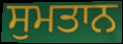
ਸੁਮਤਾਨ